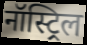
नॉस्ट्रिल